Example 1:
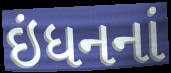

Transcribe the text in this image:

ઇંધનનાં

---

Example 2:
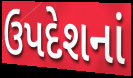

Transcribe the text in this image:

ઉપદેશનાં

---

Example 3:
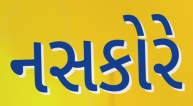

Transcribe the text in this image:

નસકોરે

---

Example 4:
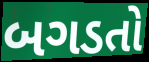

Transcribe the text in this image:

બગડતો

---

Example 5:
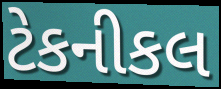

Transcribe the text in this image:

ટેકનીકલ